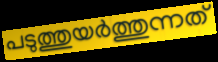
പടുത്തുയർത്തുന്നത്